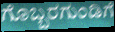
ಗೊಬ್ಬರಗುಂಡಿಗೆ